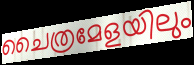
ചൈത്രമേളയിലും